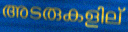
അടരുകളില്